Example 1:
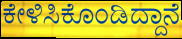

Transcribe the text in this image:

ಕೇಳಿಸಿಕೊಂಡಿದ್ದಾನೆ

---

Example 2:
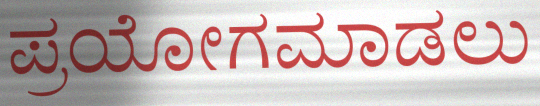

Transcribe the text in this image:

ಪ್ರಯೋಗಮಾಡಲು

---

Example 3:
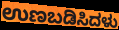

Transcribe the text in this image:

ಉಣಬಡಿಸಿದಳು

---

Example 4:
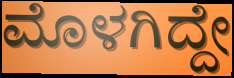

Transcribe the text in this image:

ಮೊಳಗಿದ್ದೇ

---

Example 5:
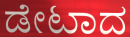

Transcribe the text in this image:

ಡೇಟಾದ